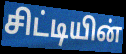
சிட்டியின்